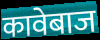
कावेबाज